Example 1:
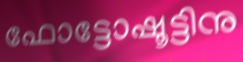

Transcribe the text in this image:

ഫോട്ടോഷൂട്ടിനു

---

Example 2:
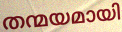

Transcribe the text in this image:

തന്മയമായി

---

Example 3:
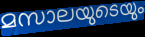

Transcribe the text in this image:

മസാലയുടെയും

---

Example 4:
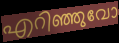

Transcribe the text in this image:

എറിഞ്ഞുവോ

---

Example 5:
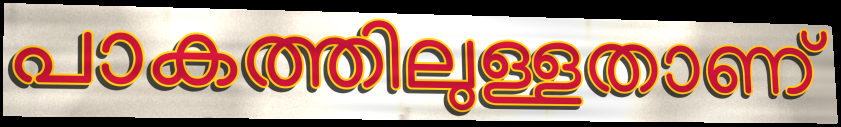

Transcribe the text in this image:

പാകത്തിലുള്ളതാണ്